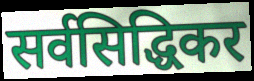
सर्वसिद्धिकर